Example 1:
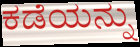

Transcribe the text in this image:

ಕಡೆಯನ್ನು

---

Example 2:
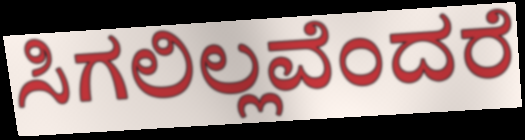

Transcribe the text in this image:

ಸಿಗಲಿಲ್ಲವೆಂದರೆ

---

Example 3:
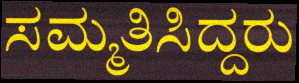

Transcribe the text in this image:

ಸಮ್ಮತಿಸಿದ್ದರು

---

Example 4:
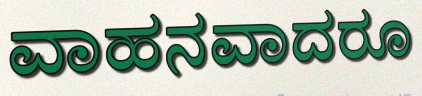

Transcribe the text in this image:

ವಾಹನವಾದರೂ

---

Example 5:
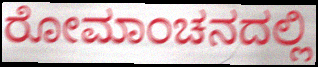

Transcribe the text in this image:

ರೋಮಾಂಚನದಲ್ಲಿ